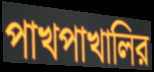
পাখপাখালির